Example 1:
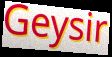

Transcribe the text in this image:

Geysir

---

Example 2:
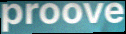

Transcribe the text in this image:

proove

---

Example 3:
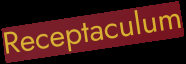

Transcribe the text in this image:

Receptaculum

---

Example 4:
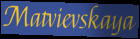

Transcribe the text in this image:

Matvievskaya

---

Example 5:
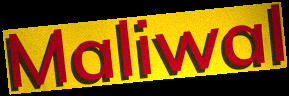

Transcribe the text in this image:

Maliwal